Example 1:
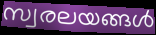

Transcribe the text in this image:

സ്വരലയങ്ങൾ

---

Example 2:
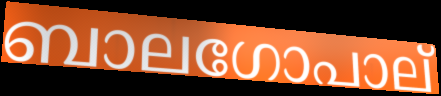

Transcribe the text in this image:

ബാലഗോപാല്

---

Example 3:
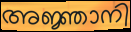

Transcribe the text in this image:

അജ്ഞാനി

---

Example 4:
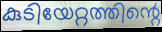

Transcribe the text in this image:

കുടിയേറ്റത്തിന്റെ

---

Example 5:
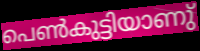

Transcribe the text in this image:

പെൺകുട്ടിയാണു്